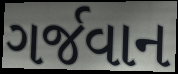
ગર્જવાન